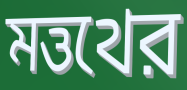
মত্তথের